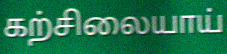
கற்சிலையாய்